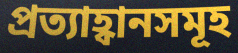
প্ৰত্যাহ্বানসমূহ